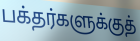
பக்தர்களுக்குத்